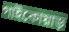
গাইকোয়াড়